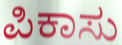
ಪಿಕಾಸು